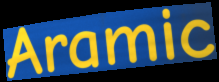
Aramic